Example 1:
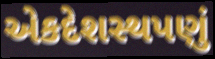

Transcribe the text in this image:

એકદેશસ્થપણું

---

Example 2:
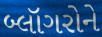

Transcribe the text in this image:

બ્લૉગરોને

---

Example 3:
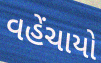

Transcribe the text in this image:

વહેંચાયો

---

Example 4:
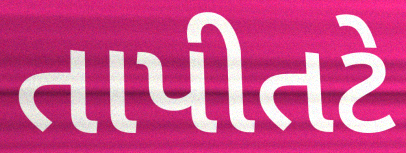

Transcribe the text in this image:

તાપીતટે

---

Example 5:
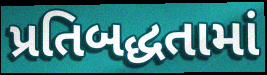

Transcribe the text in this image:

પ્રતિબદ્ધતામાં